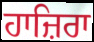
ਹਾਜ਼ਿਰਾ